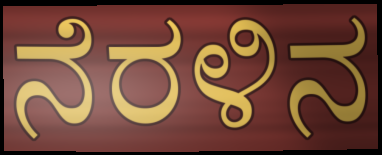
ನೆರಳಿನ